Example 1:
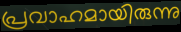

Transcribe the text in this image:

പ്രവാഹമായിരുന്നു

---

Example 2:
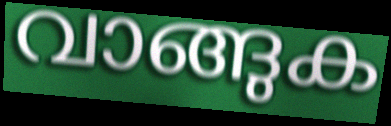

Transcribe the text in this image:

വാങ്ങുക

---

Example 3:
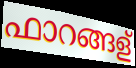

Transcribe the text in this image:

ഫാറങ്ങള്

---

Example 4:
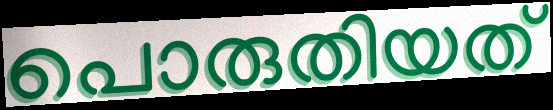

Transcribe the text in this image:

പൊരുതിയത്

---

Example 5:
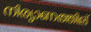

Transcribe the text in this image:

നിര്യാണത്തില്